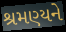
શ્રમણ્યને